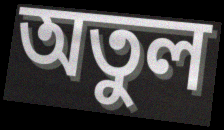
অতুল